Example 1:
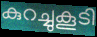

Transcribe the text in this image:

കുറച്ചുകൂടി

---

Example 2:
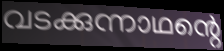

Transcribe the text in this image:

വടക്കുന്നാഥന്റെ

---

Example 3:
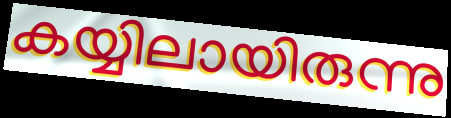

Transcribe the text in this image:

കയ്യിലായിരുന്നു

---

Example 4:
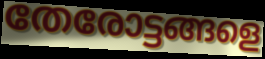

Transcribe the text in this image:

തേരോട്ടങ്ങളെ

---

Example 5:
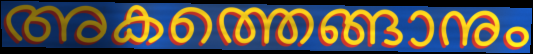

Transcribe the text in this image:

അകത്തെങ്ങാനും